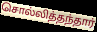
சொல்லித்தந்தார்